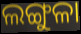
ଲଙ୍ଗୁଳା